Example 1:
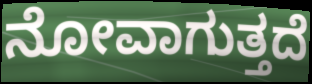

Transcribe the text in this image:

ನೋವಾಗುತ್ತದೆ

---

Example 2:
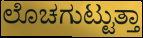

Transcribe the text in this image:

ಲೊಚಗುಟ್ಟುತ್ತಾ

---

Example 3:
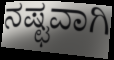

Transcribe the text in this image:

ನಷ್ಟವಾಗಿ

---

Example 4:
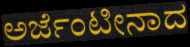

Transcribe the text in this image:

ಅರ್ಜೆಂಟೀನಾದ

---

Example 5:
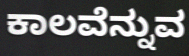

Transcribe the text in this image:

ಕಾಲವೆನ್ನುವ